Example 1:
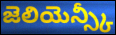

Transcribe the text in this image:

జెలియెన్స్కీ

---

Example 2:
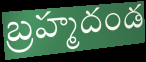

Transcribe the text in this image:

బ్రహ్మదండ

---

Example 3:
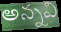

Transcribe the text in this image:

అన్నవి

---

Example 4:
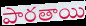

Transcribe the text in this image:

పారతాయి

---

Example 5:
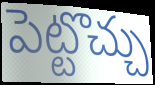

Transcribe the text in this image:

పెట్టొచ్చు